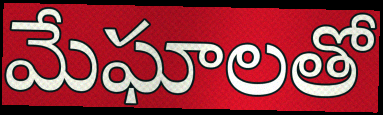
మేఘాలతో